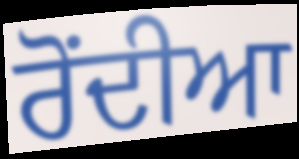
ਰੋਂਦੀਆ